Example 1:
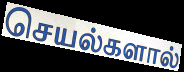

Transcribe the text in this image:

செயல்களால்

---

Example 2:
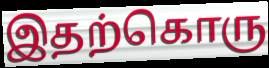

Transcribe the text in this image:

இதற்கொரு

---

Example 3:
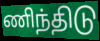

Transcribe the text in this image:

ணிந்திடு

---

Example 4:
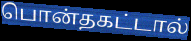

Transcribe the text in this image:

பொன்தகட்டால்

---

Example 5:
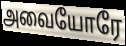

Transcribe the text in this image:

அவையோரே